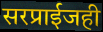
सरप्राईजही